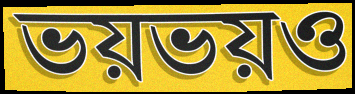
ভয়ভয়ও